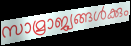
സാമ്രാജ്യങ്ങൾക്കും